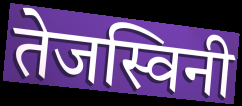
तेजस्विनी